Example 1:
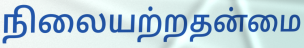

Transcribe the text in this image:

நிலையற்றதன்மை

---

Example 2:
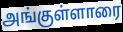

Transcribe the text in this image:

அங்குள்ளாரை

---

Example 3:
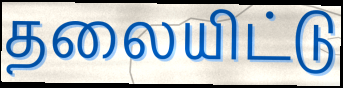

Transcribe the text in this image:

தலையிட்டு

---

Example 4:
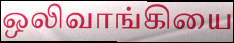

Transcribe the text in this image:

ஒலிவாங்கியை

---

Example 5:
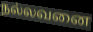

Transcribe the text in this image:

நல்லவனை